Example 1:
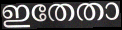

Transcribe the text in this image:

ഇതേതാ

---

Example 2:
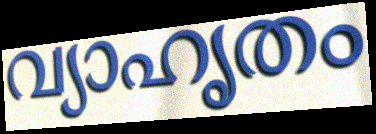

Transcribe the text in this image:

വ്യാഹൃതം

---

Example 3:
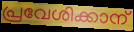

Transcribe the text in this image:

പ്രവേശിക്കാന്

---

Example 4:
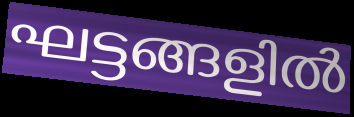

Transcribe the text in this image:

ഘട്ടങ്ങളിൽ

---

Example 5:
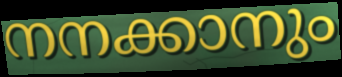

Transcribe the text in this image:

നനക്കാനും